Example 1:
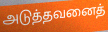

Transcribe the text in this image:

அடுத்தவனைத்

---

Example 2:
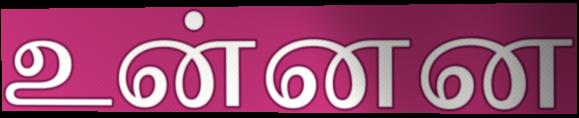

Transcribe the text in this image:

உன்னன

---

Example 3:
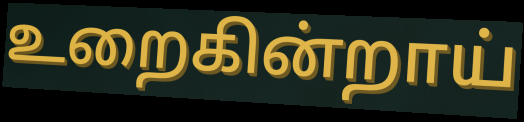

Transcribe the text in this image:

உறைகின்றாய்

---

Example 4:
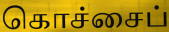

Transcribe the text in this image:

கொச்சைப்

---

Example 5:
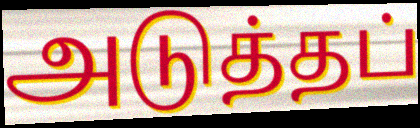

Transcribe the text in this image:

அடுத்தப்